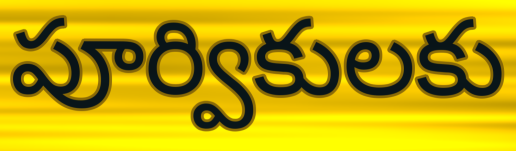
పూర్వికులకు